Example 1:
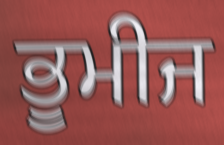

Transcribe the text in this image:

ਭੂਮੀਜ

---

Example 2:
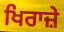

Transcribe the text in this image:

ਖਿਰਾਜ਼ੇ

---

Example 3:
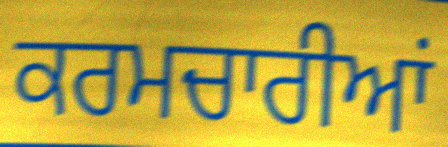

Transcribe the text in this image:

ਕਰਮਚਾਰੀਆਂ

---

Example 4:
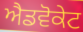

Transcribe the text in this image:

ਐਡਵੋਕੇਟ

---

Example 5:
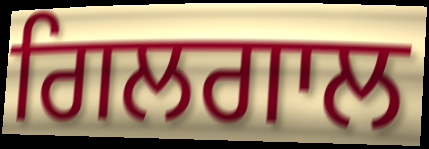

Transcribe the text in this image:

ਗਿਲਗਾਲ